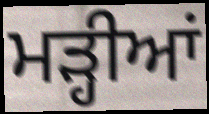
ਮੜ੍ਹੀਆਂ